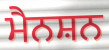
ਮੈਨਸ਼ਨ